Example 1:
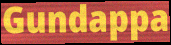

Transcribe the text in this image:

Gundappa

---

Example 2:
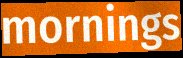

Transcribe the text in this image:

mornings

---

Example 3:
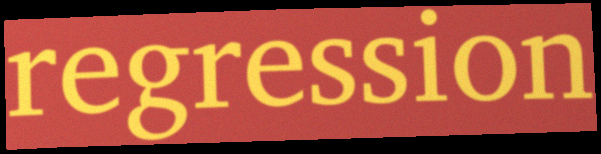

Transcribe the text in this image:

regression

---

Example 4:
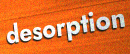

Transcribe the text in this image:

desorption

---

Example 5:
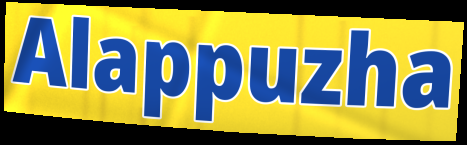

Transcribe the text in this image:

Alappuzha